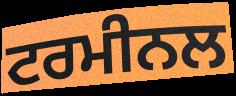
ਟਰਮੀਨਲ